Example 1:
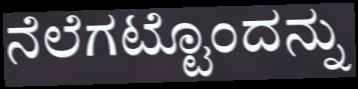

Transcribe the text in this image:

ನೆಲೆಗಟ್ಟೊಂದನ್ನು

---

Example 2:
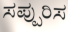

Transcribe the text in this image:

ಸಪ್ಪುರಿಸ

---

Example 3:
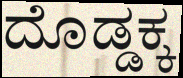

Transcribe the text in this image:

ದೊಡ್ಡಕ್ಕ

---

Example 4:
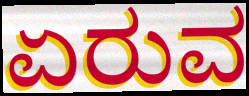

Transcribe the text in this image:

ಏರುವ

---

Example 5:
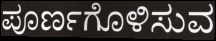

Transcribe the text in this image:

ಪೂರ್ಣಗೊಳಿಸುವ